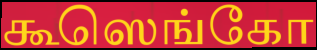
கூஸெங்கோ